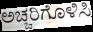
ಅಚ್ಚರಿಗೊಳಿಸಿ